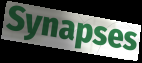
Synapses